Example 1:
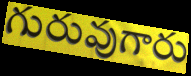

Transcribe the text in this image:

గురువుగారు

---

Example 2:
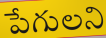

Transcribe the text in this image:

పేగులని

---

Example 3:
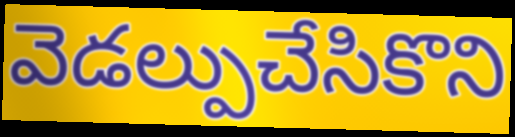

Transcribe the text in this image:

వెడల్పుచేసికొని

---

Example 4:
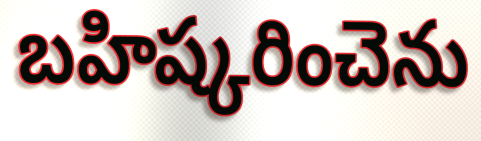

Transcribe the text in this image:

బహిష్కరించెను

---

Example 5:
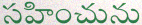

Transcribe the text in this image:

సహించును